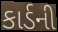
કાર્ડની